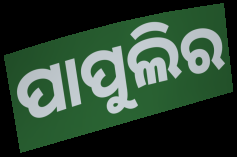
ପାପୁଲିର